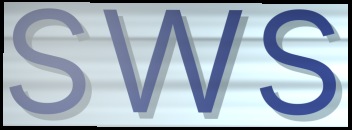
sws